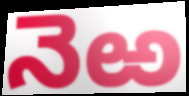
నెఱ